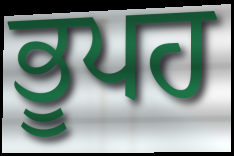
ਭੂਪਹ